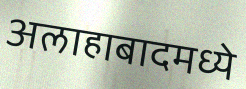
अलाहाबादमध्ये